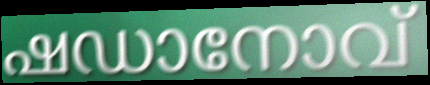
ഷഡാനോവ്